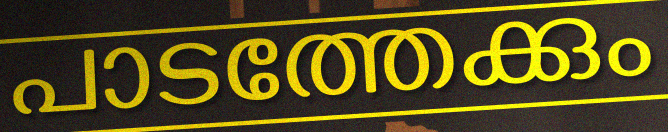
പാടത്തേക്കും